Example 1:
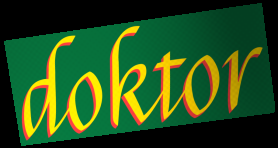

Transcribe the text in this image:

doktor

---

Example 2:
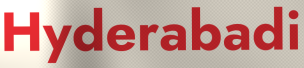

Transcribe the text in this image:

Hyderabadi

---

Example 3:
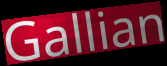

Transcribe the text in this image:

Gallian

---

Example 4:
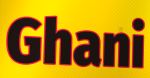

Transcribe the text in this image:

Ghani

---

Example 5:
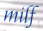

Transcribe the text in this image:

milf